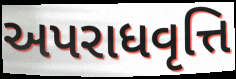
અપરાધવૃત્તિ